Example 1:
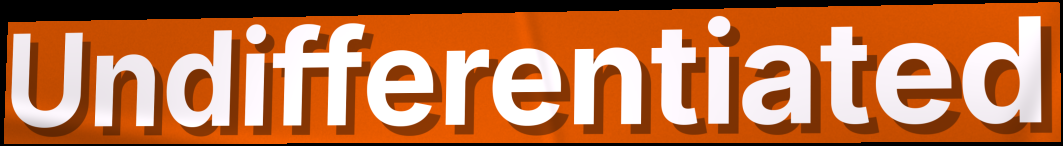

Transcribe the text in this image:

Undifferentiated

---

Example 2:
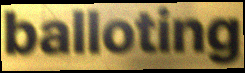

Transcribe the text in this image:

balloting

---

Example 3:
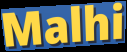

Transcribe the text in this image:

Malhi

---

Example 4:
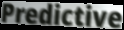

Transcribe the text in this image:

Predictive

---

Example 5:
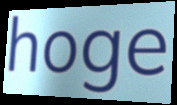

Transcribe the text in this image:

hoge